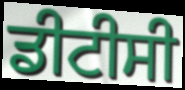
ਡੀਟੀਸੀ